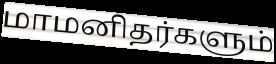
மாமனிதர்களும்